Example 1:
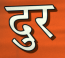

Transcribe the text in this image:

दुर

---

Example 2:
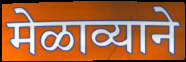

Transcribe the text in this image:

मेळाव्याने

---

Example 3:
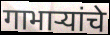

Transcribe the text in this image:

गाभाऱ्यांचे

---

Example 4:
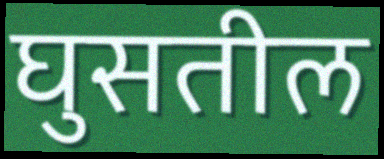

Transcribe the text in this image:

घुसतील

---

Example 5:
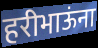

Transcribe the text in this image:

हरीभाऊंना